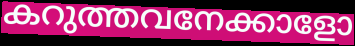
കറുത്തവനേക്കാളോ